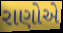
રાણોએ